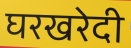
घरखरेदी